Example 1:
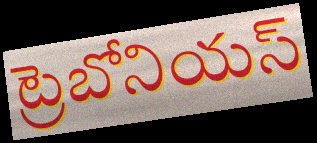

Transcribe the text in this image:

ట్రెబోనియస్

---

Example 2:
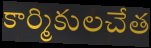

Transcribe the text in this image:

కార్మికులచేత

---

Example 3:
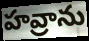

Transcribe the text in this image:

హవ్రాను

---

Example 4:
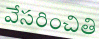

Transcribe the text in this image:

వేసరించితి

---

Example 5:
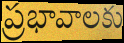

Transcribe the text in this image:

ప్రభావాలకు